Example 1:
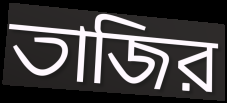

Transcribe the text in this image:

তাজির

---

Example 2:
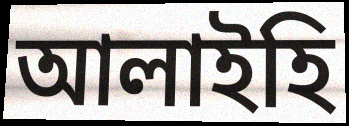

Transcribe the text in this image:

আলাইহি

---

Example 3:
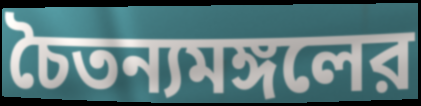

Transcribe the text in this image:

চৈতন্যমঙ্গলের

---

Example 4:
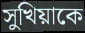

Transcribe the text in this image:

সুখিয়াকে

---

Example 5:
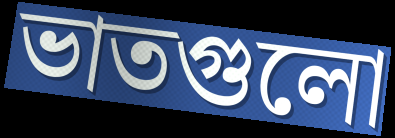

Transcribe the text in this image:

ভাতগুলো